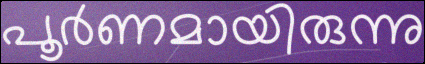
പൂർണമായിരുന്നു